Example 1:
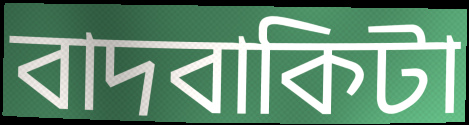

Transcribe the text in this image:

বাদবাকিটা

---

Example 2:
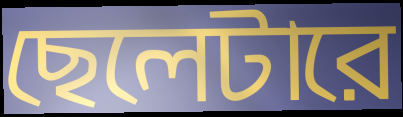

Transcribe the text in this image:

ছেলেটারে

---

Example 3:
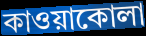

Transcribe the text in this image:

কাওয়াকোলা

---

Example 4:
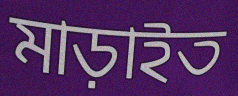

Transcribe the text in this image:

মাড়াইত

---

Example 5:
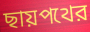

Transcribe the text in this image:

ছায়পথের